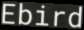
Ebird